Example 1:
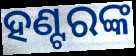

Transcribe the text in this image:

ହଣ୍ଟରଙ୍କ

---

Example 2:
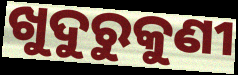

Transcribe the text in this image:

ଖୁଦୁରୁକୁଣୀ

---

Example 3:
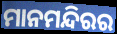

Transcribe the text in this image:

ମାନମନ୍ଦିରର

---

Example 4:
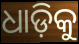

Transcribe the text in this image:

ଧାଡ଼ିକୁ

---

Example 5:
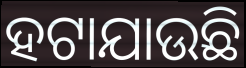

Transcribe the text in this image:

ହଟାଯାଉଛି